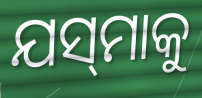
ଯସ୍‌ମାକୁ